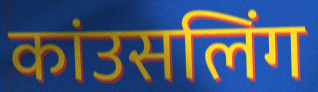
कांउसलिंग